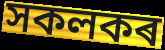
সকলকৰ